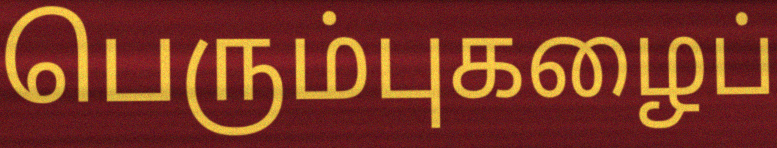
பெரும்புகழைப்